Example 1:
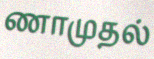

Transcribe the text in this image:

ணாமுதல்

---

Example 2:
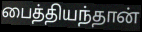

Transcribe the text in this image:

பைத்தியந்தான்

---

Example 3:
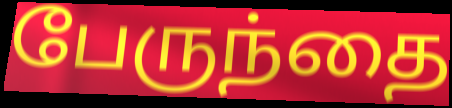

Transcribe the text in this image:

பேருந்தை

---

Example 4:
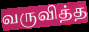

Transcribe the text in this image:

வருவித்த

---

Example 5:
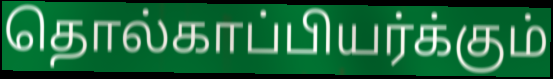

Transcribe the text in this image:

தொல்காப்பியர்க்கும்